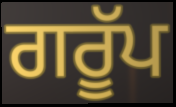
ਗਰੂੱਪ